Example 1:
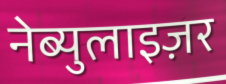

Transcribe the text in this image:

नेब्युलाइज़र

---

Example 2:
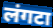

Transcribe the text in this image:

लंगटा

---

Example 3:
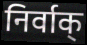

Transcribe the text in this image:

निर्वाक्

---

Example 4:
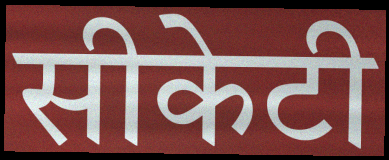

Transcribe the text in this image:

सीकेटी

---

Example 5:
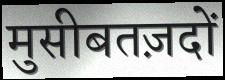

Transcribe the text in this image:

मुसीबतज़दों